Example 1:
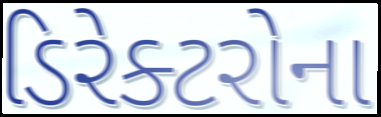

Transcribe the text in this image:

ડિરેક્ટરોના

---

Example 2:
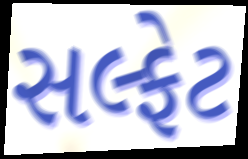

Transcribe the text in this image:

સલ્ફેટ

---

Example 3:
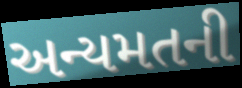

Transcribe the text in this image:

અન્યમતની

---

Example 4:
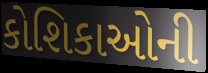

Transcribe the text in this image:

કોશિકાઓની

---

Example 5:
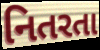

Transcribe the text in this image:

નિતરતા